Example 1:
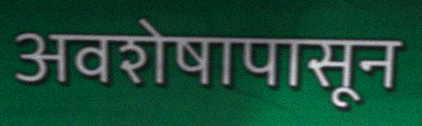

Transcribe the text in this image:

अवशेषापासून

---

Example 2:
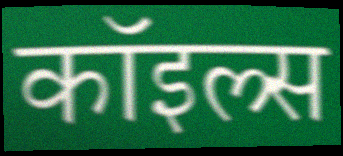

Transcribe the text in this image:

कॉइल्स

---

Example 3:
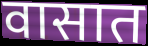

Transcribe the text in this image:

वासात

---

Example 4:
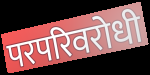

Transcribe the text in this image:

परपरिवरोधी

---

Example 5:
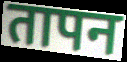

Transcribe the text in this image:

तापन